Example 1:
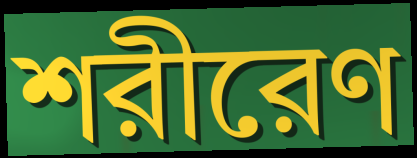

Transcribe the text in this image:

শরীরেণ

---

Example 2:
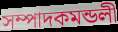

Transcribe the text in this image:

সম্পাদকমন্ডলী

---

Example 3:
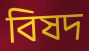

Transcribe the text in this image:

বিষদ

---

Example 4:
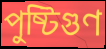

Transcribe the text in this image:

পুষ্টিগুণ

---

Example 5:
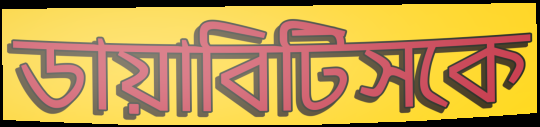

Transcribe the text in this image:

ডায়াবিটিসকে